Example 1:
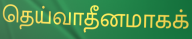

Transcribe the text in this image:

தெய்வாதீனமாகக்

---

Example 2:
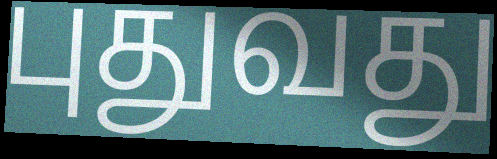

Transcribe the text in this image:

புதுவது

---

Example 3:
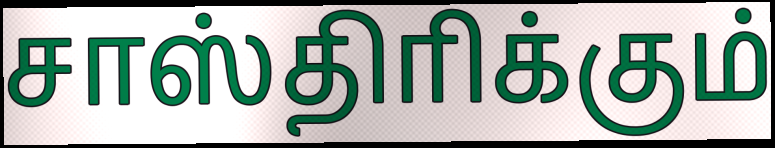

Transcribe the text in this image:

சாஸ்திரிக்கும்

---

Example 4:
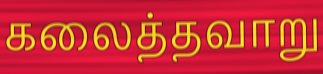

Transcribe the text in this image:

கலைத்தவாறு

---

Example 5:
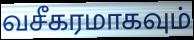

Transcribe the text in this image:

வசீகரமாகவும்